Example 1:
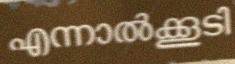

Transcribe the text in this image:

എന്നാൽക്കൂടി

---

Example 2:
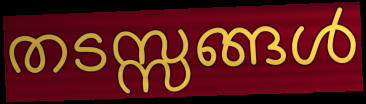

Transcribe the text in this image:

തടസ്സങ്ങൾ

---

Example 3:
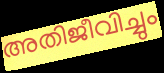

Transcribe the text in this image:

അതിജീവിച്ചും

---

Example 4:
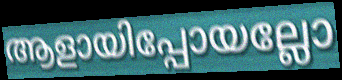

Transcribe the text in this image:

ആളായിപ്പോയല്ലോ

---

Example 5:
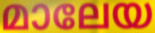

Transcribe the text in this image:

മാലേയ